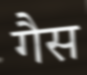
गैस